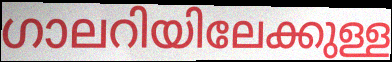
ഗാലറിയിലേക്കുള്ള